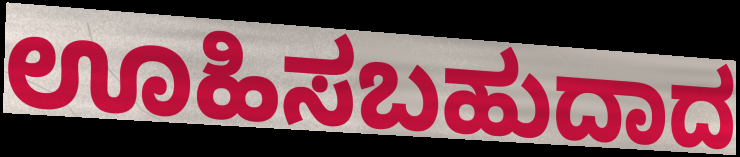
ಊಹಿಸಬಹುದಾದ